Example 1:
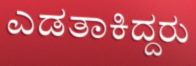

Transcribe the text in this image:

ಎಡತಾಕಿದ್ದರು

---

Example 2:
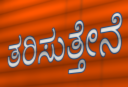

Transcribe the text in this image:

ತರಿಸುತ್ತೇನೆ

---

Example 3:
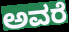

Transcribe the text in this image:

ಅವರೆ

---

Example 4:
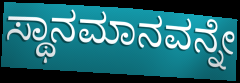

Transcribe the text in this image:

ಸ್ಥಾನಮಾನವನ್ನೇ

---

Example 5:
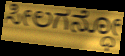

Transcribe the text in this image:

ಸೀಲಗನ್ಧೋ